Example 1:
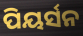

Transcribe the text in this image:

ପିୟର୍ସନ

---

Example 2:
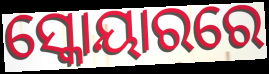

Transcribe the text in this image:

ସ୍କୋୟାରରେ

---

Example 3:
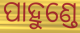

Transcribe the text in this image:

ପାହୁଣ୍ଡେ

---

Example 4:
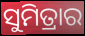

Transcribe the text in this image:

ସୁମିତ୍ରାର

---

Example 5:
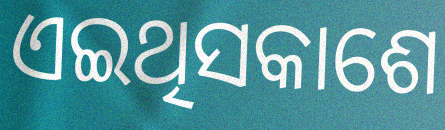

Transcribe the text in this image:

ଏଇଥିସକାଶେ